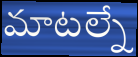
మాటల్నే